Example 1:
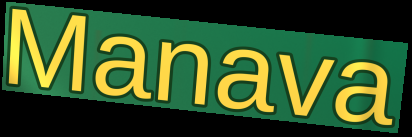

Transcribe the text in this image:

Manava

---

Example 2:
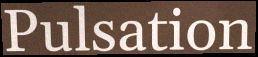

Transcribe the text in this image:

Pulsation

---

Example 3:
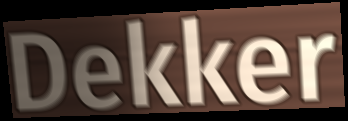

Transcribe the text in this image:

Dekker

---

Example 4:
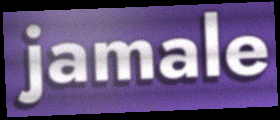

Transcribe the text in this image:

jamale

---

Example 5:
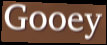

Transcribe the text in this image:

Gooey